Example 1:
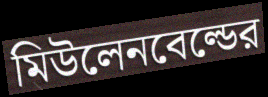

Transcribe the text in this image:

মিউলেনবেল্ডের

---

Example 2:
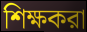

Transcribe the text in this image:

শিক্ষকরা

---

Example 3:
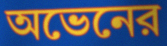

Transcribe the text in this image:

অভেনের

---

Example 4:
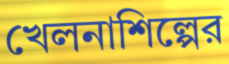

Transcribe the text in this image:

খেলনাশিল্পের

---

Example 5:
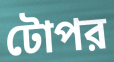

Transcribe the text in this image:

টোপর